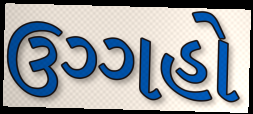
ઉગ્ગહો